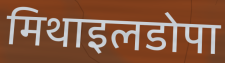
मिथाइलडोपा